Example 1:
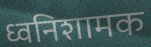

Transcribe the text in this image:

ध्वनिशामक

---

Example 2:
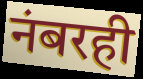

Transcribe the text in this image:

नंबरही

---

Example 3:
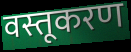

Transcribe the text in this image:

वस्तूकरण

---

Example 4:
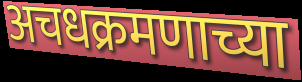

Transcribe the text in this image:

अचधक्रमणाच्या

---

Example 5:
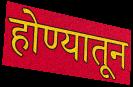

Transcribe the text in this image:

होण्यातून